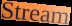
Stream